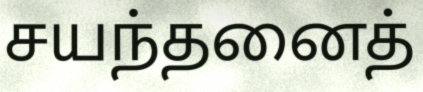
சயந்தனைத்